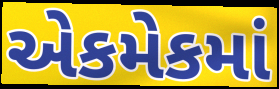
એકમેકમાં